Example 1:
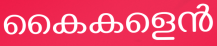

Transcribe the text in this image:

കൈകളെൻ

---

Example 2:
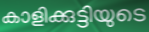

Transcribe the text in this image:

കാളിക്കുട്ടിയുടെ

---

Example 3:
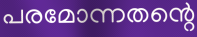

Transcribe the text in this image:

പരമോന്നതന്റെ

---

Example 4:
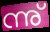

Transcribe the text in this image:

ന്നു്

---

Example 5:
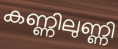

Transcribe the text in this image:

കണ്ണിലുണ്ണി